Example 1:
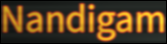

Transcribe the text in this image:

Nandigam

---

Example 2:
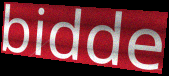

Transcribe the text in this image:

bidde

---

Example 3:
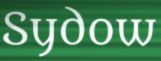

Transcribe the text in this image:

Sydow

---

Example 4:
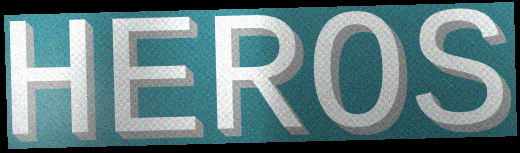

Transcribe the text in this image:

HEROS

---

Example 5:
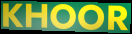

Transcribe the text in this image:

KHOOR